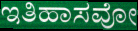
ಇತಿಹಾಸವೋ